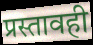
प्रस्तावही